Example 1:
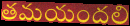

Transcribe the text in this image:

తమయందలి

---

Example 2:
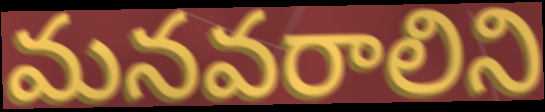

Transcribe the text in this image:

మనవరాలిని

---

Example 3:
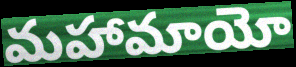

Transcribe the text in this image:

మహామాయో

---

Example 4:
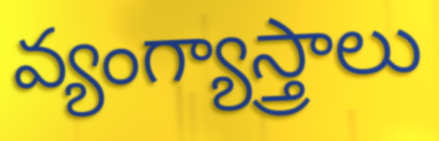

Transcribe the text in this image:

వ్యంగ్యాస్త్రాలు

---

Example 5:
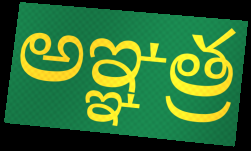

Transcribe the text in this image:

అఞ్ఞత్ర